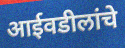
आईवडीलांचे